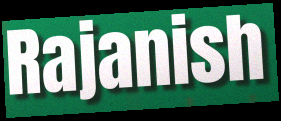
Rajanish